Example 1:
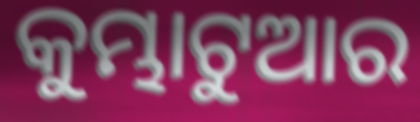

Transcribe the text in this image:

କୁମ୍ଭାଟୁଆର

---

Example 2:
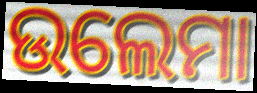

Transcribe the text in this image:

ଉଲେମା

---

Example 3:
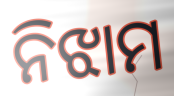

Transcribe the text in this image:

ନିଝାମ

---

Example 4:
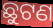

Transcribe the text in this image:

ଛୁଟଣ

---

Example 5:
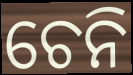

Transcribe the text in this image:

ଚେନି